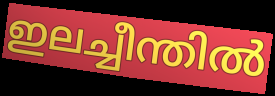
ഇലച്ചീന്തിൽ